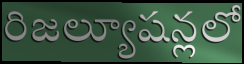
రిజల్యూషన్లలో